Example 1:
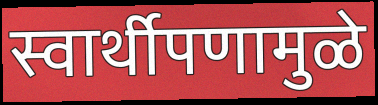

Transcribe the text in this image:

स्वार्थीपणामुळे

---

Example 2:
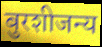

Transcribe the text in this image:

बुरशीजन्य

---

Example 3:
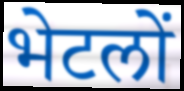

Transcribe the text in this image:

भेटलों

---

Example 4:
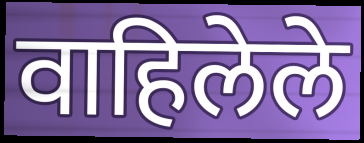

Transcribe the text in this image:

वाहिलेले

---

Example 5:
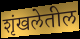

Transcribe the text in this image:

शृंखलेतील